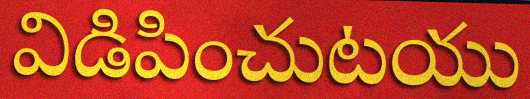
విడిపించుటయు